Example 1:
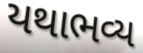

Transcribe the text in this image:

યથાભવ્ય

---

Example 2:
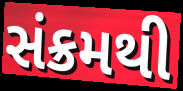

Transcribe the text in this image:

સંક્રમથી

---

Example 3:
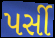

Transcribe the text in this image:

પર્સી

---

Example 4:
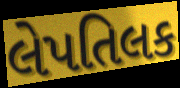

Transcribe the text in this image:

લેપતિલક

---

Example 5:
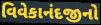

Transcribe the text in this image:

વિવેકાનંદજીનો